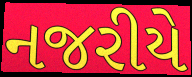
નજરીયે